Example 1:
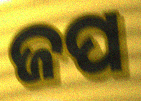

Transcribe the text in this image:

ଜପ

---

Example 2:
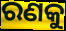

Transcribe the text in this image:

ରଣକୁ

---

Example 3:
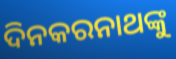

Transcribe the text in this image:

ଦିନକରନାଥଙ୍କୁ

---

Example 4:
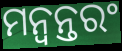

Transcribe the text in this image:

ମନ୍ବନ୍ତରଂ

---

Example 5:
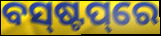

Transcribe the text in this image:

ବସ୍‌ଷ୍ଟପ୍‌ରେ